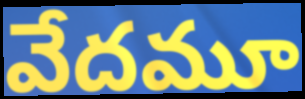
వేదమూ